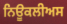
ਨਿਊਕਲੀਅਸ